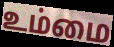
உம்மை